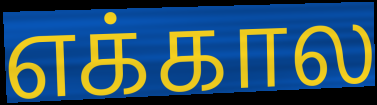
எக்கால